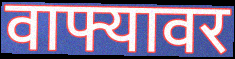
वाफ्यावर